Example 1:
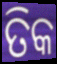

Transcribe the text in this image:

ତିକ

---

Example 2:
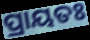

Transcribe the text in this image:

ପ୍ରାୟତଃ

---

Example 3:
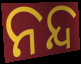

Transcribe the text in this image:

ନନ୍ଦ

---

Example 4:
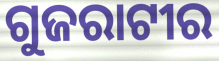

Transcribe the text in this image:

ଗୁଜରାଟୀର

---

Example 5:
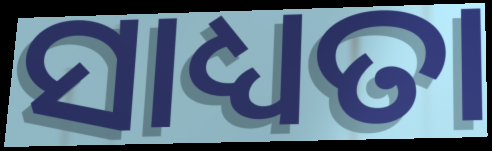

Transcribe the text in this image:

ସାଧ୍ୟତା